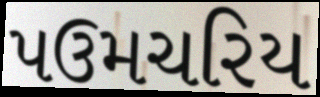
પઉમચરિય